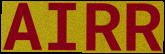
AIRR